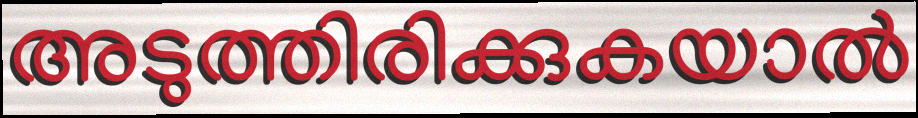
അടുത്തിരിക്കുകയാൽ